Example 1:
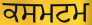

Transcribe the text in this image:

ਕਸਮਟਮ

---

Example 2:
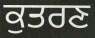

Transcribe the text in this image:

ਕੁਤਰਣ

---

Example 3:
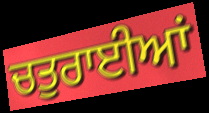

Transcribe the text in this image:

ਚਤੁਰਾਈਆਂ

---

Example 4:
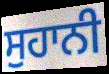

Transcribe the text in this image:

ਸੁਹਾਨੀ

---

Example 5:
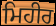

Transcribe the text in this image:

ਮਿਹੀਰ